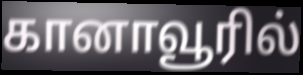
கானாவூரில்